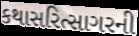
કથાસરિત્સાગરની